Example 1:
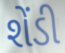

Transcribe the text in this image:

શેંડી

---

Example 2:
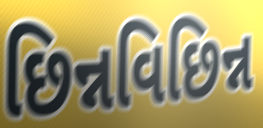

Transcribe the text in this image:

છિન્નવિછિન્ન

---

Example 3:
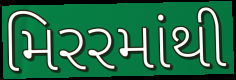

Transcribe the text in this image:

મિરરમાંથી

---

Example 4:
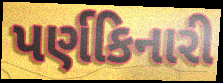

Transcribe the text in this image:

પર્ણકિનારી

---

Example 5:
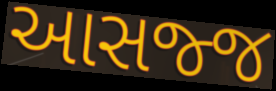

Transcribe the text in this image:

આસજ્જ